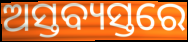
ଅସ୍ତବ୍ୟସ୍ତରେ